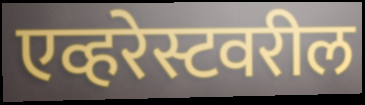
एव्हरेस्टवरील